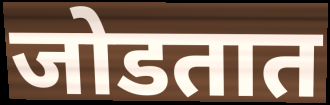
जोडतात